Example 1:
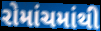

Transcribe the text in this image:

રોમાંચમાંથી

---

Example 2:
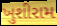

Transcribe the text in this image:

ખુશીરામ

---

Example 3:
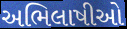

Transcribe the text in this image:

અભિલાષીઓ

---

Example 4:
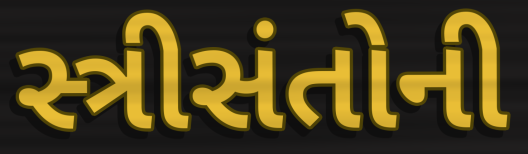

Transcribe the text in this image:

સ્ત્રીસંતોની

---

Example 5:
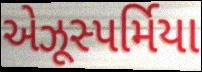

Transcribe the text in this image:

એઝૂસ્પર્મિયા